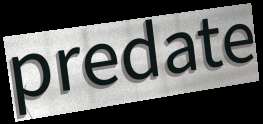
predate